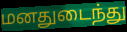
மனதுடைந்து